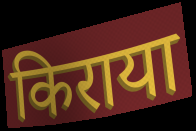
किराया